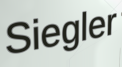
Siegler